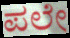
ಪಲೇ